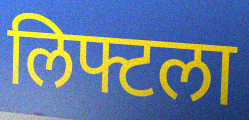
लिफ्टला